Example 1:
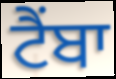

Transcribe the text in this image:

ਟੈਂਬਾ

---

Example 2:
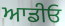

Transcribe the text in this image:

ਆਡੀਓ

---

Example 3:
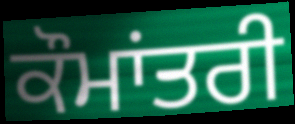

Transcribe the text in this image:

ਕੌਮਾਂਤਰੀ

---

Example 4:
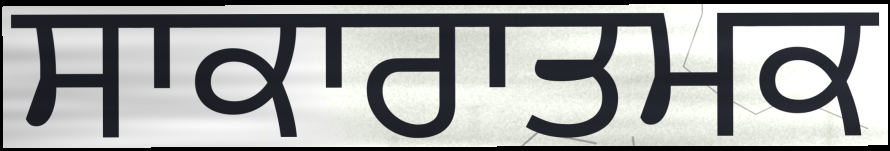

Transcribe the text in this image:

ਸਾਕਾਰਾਤਮਕ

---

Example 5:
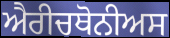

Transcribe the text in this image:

ਐਰੀਚਥੋਨੀਅਸ